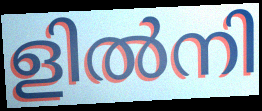
ളിൽനി